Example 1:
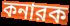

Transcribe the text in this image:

কনারক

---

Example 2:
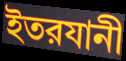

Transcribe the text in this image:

ইতরযানী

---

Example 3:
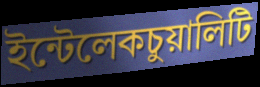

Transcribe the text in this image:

ইন্টেলেকচুয়ালিটি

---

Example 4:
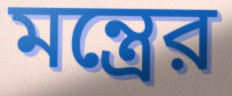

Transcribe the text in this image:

মন্ত্রের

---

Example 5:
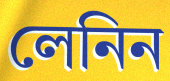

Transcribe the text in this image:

লেনিন